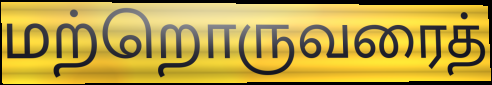
மற்றொருவரைத்